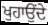
ਖੁਹਾਉਂਦੇ